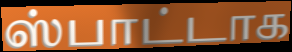
ஸ்பாட்டாக